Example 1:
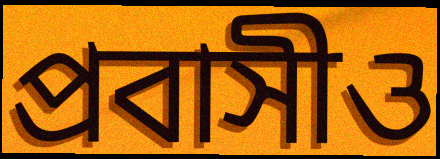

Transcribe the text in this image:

প্রবাসীও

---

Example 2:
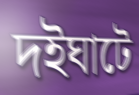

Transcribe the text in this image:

দইঘাটে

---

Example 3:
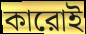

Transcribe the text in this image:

কারোই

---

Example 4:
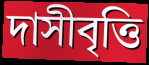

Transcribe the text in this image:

দাসীবৃত্তি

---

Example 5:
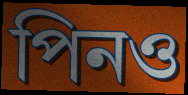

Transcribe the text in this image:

পিনও